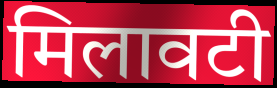
मिलावटी